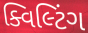
ક્વિલ્ટિંગ